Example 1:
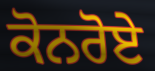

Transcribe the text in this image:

ਕੋਨਰੋਏ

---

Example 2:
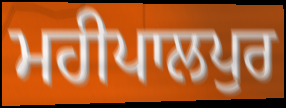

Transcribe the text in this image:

ਮਹੀਪਾਲਪੁਰ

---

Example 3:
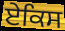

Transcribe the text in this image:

ਏਕਿਸ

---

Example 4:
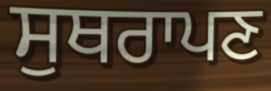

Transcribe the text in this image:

ਸੁਥਰਾਪਣ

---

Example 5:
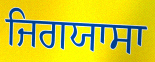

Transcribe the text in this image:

ਜਿਗਯਾਸਾ